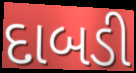
દાબડી